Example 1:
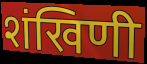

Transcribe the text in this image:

शंखिणी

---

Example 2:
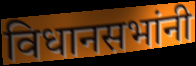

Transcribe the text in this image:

विधानसभांनी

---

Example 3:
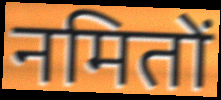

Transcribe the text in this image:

नमितों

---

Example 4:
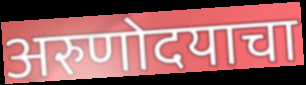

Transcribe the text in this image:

अरुणोदयाचा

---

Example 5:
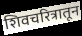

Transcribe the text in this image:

शिवचरित्रातून